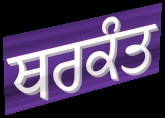
ਥਰਕੰਤ